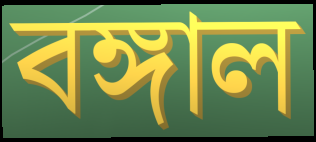
বঙ্গাল